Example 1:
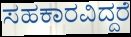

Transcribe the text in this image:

ಸಹಕಾರವಿದ್ದರೆ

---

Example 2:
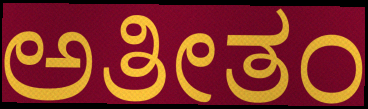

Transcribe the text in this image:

ಅತೀತಂ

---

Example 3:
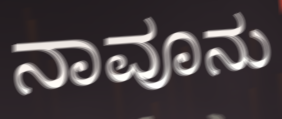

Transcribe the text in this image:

ನಾವೂನು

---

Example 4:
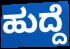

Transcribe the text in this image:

ಹುದ್ದೆ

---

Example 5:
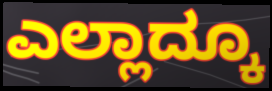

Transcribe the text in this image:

ಎಲ್ಲಾದ್ಕೂ